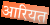
आरियत